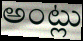
అంట్లు